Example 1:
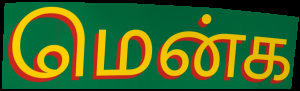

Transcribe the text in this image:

மென்க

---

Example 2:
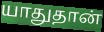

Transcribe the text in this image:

யாதுதான்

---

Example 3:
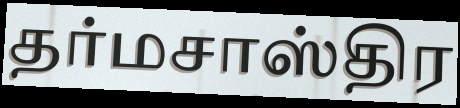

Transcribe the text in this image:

தர்மசாஸ்திர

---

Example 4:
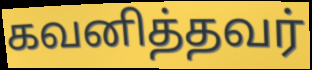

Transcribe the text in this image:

கவனித்தவர்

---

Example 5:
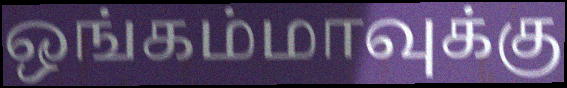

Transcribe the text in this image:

ஒங்கம்மாவுக்கு